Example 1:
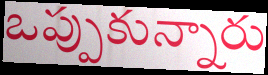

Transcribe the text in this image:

ఒప్పుకున్నారు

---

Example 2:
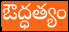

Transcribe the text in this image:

ఔద్ధత్యం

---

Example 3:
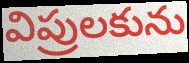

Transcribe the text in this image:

విప్రులకును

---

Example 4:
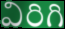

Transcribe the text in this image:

విరిగి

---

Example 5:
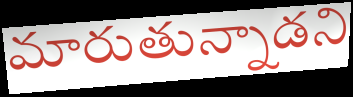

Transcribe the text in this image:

మారుతున్నాడని